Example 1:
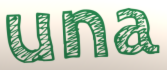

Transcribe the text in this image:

una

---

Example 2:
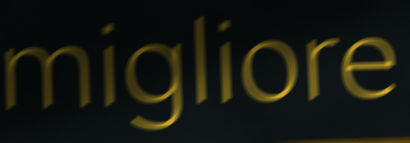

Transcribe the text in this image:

migliore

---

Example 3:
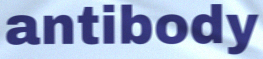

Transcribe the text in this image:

antibody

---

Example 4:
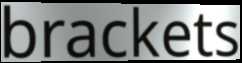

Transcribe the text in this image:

brackets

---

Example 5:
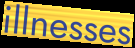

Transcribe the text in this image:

illnesses